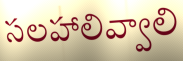
సలహాలివ్వాలి